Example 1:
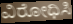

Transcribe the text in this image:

ವಿರೋಧಿಸಿ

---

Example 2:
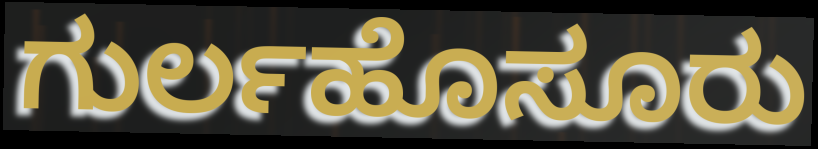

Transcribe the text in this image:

ಗುರ್ಲಹೊಸೂರು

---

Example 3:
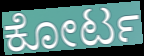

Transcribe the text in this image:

ಕೋರ್ಟ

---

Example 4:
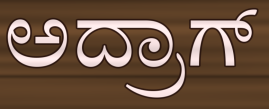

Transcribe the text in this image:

ಅದ್ರಾಗ್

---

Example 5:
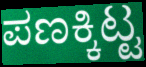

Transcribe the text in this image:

ಪಣಕ್ಕಿಟ್ಟ